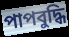
পাপবুদ্ধি